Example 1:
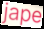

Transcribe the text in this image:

jape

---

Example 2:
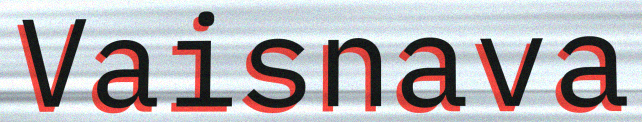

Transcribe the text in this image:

Vaisnava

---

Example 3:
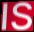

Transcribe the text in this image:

IS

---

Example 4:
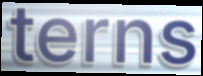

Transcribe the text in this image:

terns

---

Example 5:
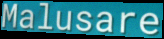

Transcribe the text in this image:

Malusare